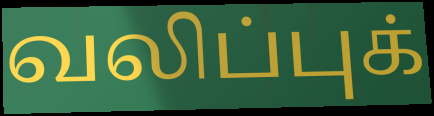
வலிப்புக்